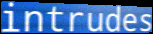
intrudes